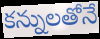
కన్నులతోనే